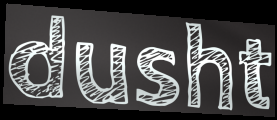
dusht